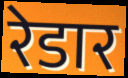
रेडार